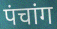
पंचांग